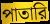
পাতারি